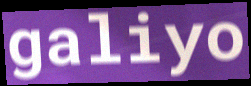
galiyo